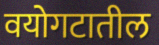
वयोगटातील